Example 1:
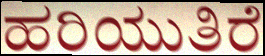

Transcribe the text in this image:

ಹರಿಯುತಿರೆ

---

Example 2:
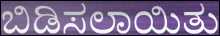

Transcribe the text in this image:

ಬಿಡಿಸಲಾಯಿತು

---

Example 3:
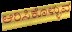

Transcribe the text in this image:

ಆರಿಸಿಕೊಳ್ಳುವ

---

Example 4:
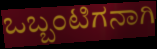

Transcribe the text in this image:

ಒಬ್ಬಂಟಿಗನಾಗಿ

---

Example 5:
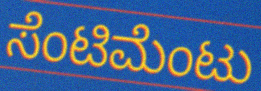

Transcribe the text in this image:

ಸೆಂಟಿಮೆಂಟು